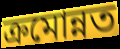
ক্রমোন্নত